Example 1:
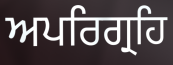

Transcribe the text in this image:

ਅਪਰਿਗ੍ਰਹਿ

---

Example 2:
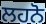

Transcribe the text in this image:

ਲਹਨੋ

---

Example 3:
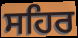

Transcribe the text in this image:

ਸਹਿਰ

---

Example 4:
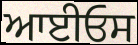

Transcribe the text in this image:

ਆਈਓਸ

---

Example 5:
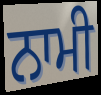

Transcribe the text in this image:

ਨਾਮੀ